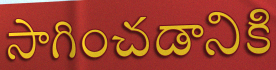
సాగించడానికి